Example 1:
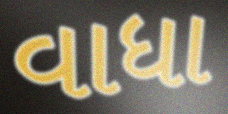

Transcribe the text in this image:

વાધા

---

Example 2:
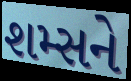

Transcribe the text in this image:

શમ્સને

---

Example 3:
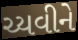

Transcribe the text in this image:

ચ્યવીને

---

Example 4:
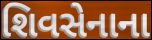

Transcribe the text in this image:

શિવસેનાના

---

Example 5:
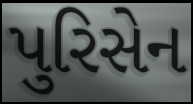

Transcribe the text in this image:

પુરિસેન